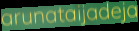
arunataijadeja